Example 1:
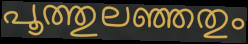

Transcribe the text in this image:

പൂത്തുലഞ്ഞതും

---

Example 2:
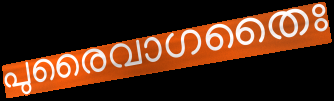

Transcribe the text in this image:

പുരൈവാഗതൈഃ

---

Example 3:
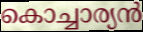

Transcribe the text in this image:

കൊച്ചാര്യൻ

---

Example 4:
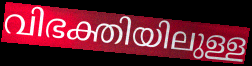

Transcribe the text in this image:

വിഭക്തിയിലുള്ള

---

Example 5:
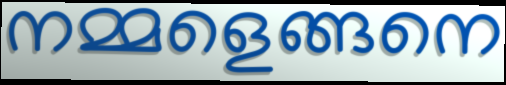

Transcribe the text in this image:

നമ്മളെങ്ങനെ